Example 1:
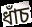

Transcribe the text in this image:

ধাঁচ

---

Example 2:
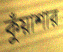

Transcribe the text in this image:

কুঁয়াশার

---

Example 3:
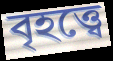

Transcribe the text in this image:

বৃহত্ত্বে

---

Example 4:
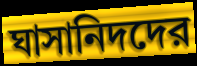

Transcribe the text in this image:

ঘাসানিদদের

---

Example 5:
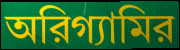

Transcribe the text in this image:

অরিগ্যামির